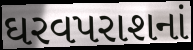
ઘરવપરાશનાં